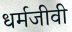
धर्मजीवी